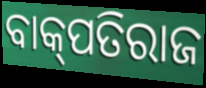
ବାକ୍‌ପତିରାଜ